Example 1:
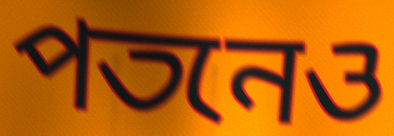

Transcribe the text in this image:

পতনেও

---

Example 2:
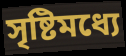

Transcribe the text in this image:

সৃষ্টিমধ্যে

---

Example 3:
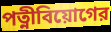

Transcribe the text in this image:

পত্নীবিয়োগের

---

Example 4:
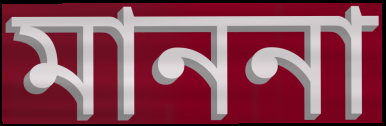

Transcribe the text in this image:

মাননা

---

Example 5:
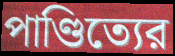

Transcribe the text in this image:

পাণ্ডিত্যের